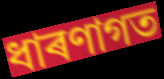
ধাৰণাগত